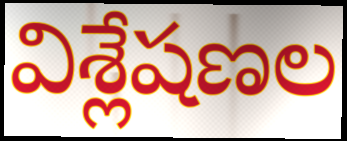
విశ్లేషణల